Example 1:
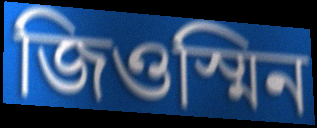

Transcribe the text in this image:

জিওস্মিন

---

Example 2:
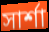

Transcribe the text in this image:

সার্শা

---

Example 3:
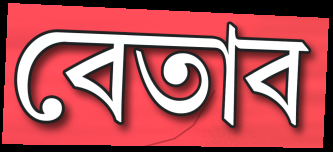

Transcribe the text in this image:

বেতাব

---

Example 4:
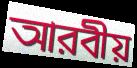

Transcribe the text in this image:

আরবীয়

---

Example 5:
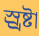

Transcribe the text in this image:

স্র্রষ্টা